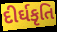
દીર્ઘકૃતિ